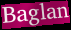
Baglan